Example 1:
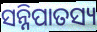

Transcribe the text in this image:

ସନ୍ନିପାତସ୍ୟ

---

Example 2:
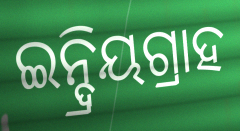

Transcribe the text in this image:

ଇନ୍ଦ୍ରିୟଗ୍ରାହ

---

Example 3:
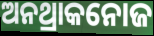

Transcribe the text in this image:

ଅନଥ୍ରାକନୋଜ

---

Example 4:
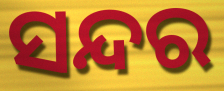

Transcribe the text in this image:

ସନ୍ଦର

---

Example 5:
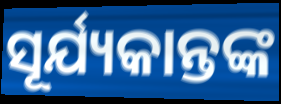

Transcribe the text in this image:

ସୂର୍ଯ୍ୟକାନ୍ତଙ୍କ